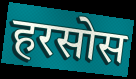
हरसोस